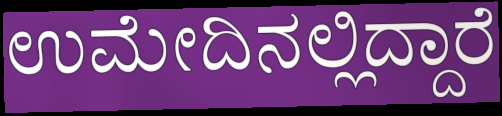
ಉಮೇದಿನಲ್ಲಿದ್ದಾರೆ